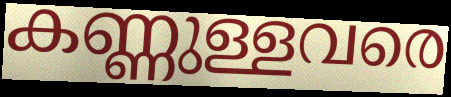
കണ്ണുള്ളവരെ